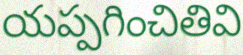
యప్పగించితివి